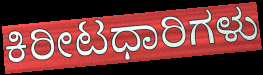
ಕಿರೀಟಧಾರಿಗಳು